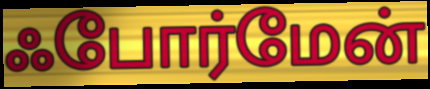
ஃபோர்மேன்